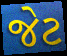
જેટ